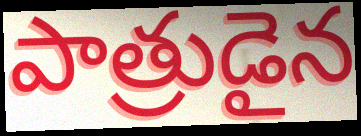
పాత్రుడైన